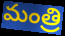
మంత్రి